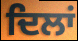
ਦਿਲਾਂ